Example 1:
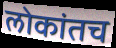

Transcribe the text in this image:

लोकांतच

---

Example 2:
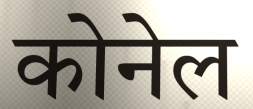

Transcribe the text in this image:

कोनेल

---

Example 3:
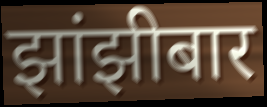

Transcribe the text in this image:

झांझीबार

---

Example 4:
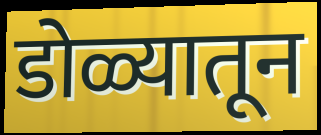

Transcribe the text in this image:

डोळ्यातून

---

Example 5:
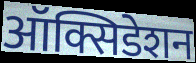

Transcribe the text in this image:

ऑक्सिडेशन